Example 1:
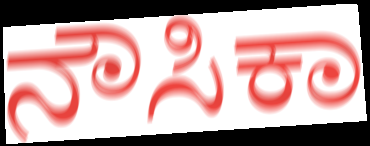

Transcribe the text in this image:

ನೌಸಿಕಾ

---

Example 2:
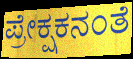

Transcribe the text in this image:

ಪ್ರೇಕ್ಷಕನಂತೆ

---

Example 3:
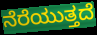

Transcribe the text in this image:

ನೆರೆಯುತ್ತದೆ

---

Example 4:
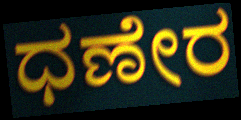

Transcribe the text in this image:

ಧಣೇರ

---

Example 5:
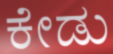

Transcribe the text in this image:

ಕೇಡು